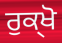
ਰੁਕ੍ਖੋ